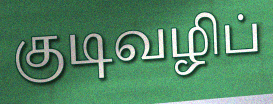
குடிவழிப்